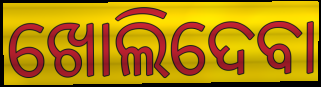
ଖୋଲିଦେବା